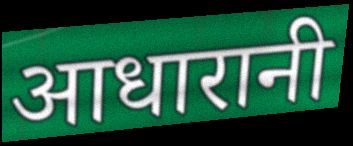
आधारानी